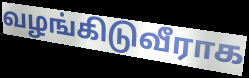
வழங்கிடுவீராக